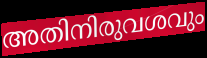
അതിനിരുവശവും